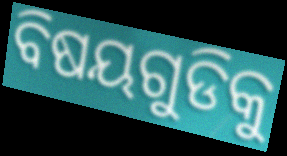
ବିଷୟଗୁଡିକୁ